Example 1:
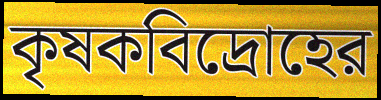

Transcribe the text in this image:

কৃষকবিদ্রোহের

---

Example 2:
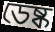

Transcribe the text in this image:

ডেষ্ক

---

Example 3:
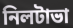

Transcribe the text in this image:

নিলটাভা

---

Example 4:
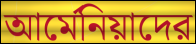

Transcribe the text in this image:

আর্মেনিয়াদের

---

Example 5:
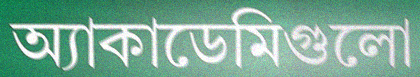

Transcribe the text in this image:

অ্যাকাডেমিগুলো